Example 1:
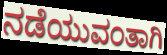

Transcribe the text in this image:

ನಡೆಯುವಂತಾಗಿ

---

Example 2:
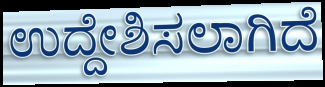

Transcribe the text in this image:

ಉದ್ದೇಶಿಸಲಾಗಿದೆ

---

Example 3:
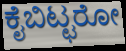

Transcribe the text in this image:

ಕೈಬಿಟ್ಟರೋ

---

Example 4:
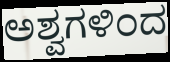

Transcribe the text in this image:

ಅಶ್ವಗಳಿಂದ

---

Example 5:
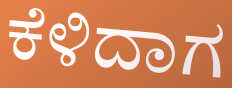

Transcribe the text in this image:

ಕೆಳಿದಾಗ